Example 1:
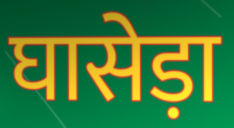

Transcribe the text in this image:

घासेड़ा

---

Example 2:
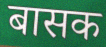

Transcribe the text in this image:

बासक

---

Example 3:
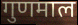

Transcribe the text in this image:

गुणमाल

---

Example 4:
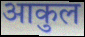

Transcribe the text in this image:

आकुल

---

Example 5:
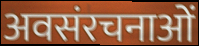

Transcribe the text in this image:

अवसंरचनाओं